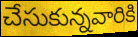
చేసుకున్నవారికి